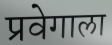
प्रवेगाला